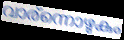
വാര്ന്നൊഴുകും